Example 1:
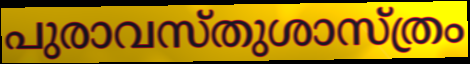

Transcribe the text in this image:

പുരാവസ്തുശാസ്ത്രം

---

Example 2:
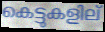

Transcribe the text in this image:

കെട്ടുകളില്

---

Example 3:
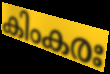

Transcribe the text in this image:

കിംകരഃ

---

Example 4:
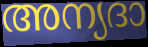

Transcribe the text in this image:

അന്യദാ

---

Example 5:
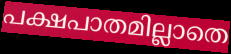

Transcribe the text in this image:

പക്ഷപാതമില്ലാതെ